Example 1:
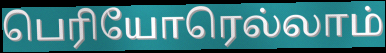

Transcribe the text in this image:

பெரியோரெல்லாம்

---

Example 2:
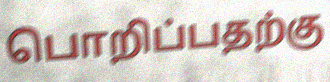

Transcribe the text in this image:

பொறிப்பதற்கு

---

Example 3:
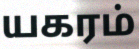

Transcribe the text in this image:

யகரம்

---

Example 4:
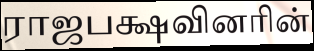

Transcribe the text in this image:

ராஜபக்ஷவினரின்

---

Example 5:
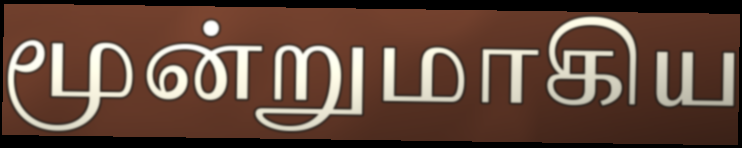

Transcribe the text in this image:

மூன்றுமாகிய